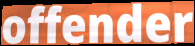
offender